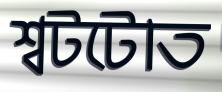
শ্বটটোত